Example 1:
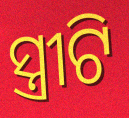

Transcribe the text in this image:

ସ୍ତ୍ରୀଟି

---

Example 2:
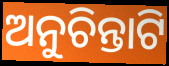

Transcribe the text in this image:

ଅନୁଚିନ୍ତାଟି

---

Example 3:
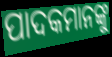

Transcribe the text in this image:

ପାଦକମାନଙ୍କୁ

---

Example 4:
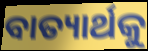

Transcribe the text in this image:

ବାତ୍ୟାର୍ଥକୁ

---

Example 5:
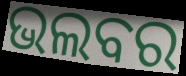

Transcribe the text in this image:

ଭଲବର